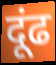
दूंढ